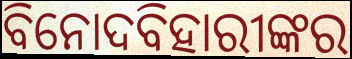
ବିନୋଦବିହାରୀଙ୍କର